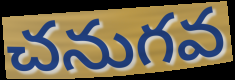
చనుగవ